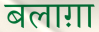
बलाग़ा